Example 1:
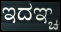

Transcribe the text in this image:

ಇದಞ್ಚ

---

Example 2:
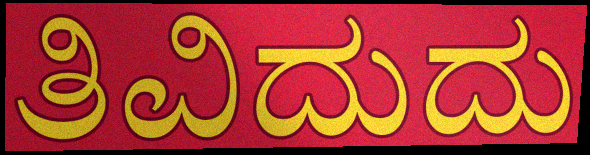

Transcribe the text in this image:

ತಿವಿದುದು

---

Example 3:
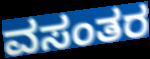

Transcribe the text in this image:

ವಸಂತರ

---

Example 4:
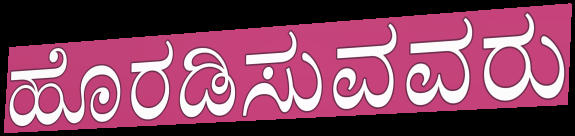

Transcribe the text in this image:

ಹೊರಡಿಸುವವರು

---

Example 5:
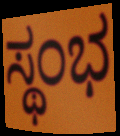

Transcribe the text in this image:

ಸ್ಥಂಭ